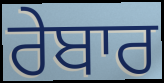
ਰੇਬਾਰ